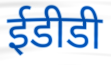
ईडीडी